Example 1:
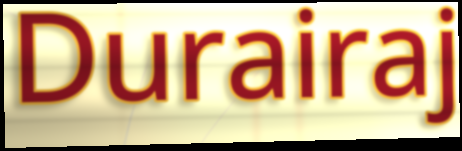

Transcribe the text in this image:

Durairaj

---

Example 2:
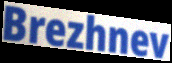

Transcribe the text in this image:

Brezhnev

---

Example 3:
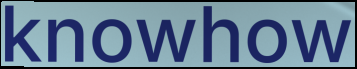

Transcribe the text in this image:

knowhow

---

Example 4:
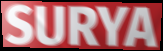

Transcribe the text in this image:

SURYA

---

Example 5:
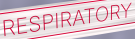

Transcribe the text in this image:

RESPIRATORY